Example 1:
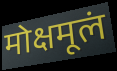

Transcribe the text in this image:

मोक्षमूलं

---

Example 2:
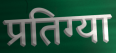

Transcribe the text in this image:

प्रतिग्या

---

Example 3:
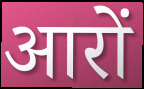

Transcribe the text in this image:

आरों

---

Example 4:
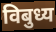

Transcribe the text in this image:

विबुध्य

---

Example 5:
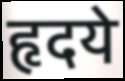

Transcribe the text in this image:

हृदये